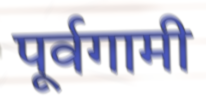
पूर्वगामी